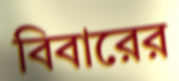
বিবারের